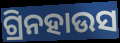
ଗ୍ରିନହାଉସ